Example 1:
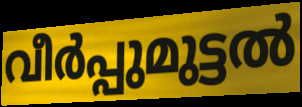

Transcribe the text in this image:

വീർപ്പുമുട്ടൽ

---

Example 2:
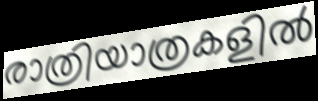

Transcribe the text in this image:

രാത്രിയാത്രകളിൽ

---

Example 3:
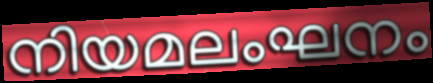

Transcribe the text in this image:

നിയമലംഘനം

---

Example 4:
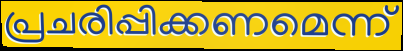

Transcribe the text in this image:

പ്രചരിപ്പിക്കണമെന്ന്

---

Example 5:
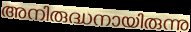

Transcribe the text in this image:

അനിരുദ്ധനായിരുന്നു